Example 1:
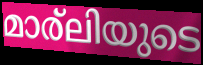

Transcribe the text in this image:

മാര്ലിയുടെ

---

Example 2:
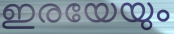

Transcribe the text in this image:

ഇരയേയും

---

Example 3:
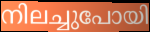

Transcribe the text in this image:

നിലച്ചുപോയി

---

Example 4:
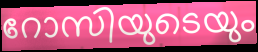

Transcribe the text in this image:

റോസിയുടെയും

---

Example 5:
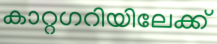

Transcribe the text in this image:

കാറ്റഗറിയിലേക്ക്